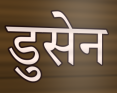
डुसेन